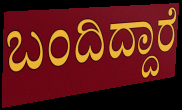
ಬಂದಿದ್ದಾರೆ